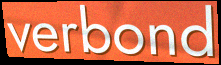
verbond